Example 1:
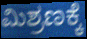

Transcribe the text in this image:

ಮಿಶ್ರಣಕ್ಕೆ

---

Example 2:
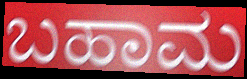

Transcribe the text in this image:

ಬಹಾಮ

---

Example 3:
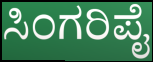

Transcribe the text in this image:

ಸಿಂಗರಿಪೈ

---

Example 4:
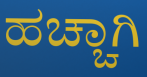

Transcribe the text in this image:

ಹಚ್ಚಾಗಿ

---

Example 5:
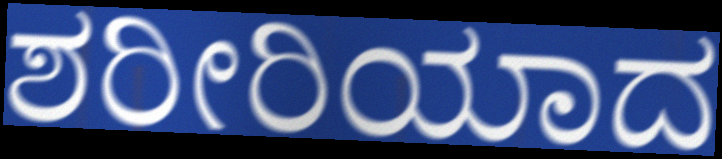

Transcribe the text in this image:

ಶರೀರಿಯಾದ